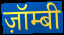
ज़ॉम्बी